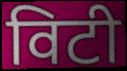
विटी